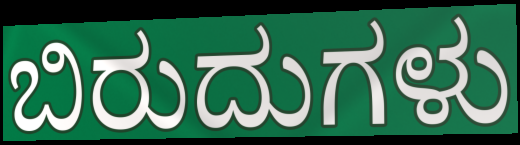
ಬಿರುದುಗಳು